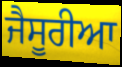
ਜੈਸੂਰੀਆ